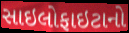
સાઇલોફાઇટાનો